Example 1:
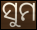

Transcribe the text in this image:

ସୁମ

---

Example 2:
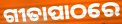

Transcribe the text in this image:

ଗୀତାପାଠରେ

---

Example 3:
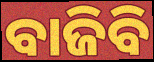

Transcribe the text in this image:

ବାଜିବି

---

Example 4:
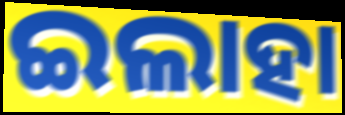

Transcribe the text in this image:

ଇଲାହା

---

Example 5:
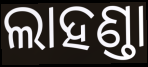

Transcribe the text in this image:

ଲାହଣ୍ଡା